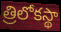
త్రిలోకస్థా